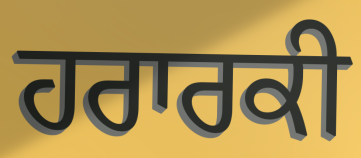
ਹਰਾਰਕੀ